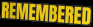
REMEMBERED